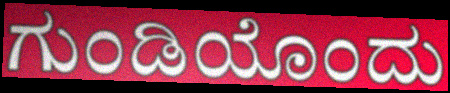
ಗುಂಡಿಯೊಂದು